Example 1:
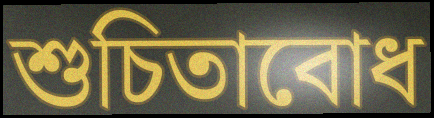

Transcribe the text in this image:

শুচিতাবোধ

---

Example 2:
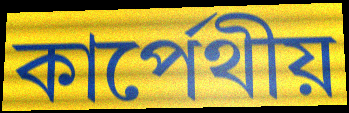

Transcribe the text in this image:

কার্পেথীয়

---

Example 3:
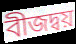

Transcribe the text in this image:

বীজদ্বয়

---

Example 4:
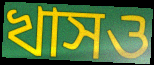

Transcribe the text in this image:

খাসও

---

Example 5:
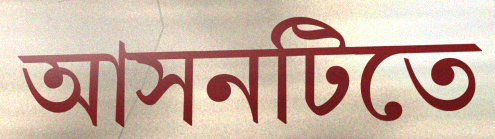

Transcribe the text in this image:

আসনটিতে